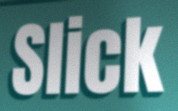
Slick